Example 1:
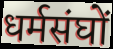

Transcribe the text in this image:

धर्मसंघों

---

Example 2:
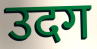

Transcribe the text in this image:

उदग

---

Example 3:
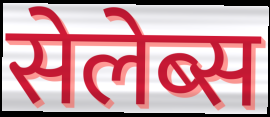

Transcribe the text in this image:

सेलेब्‍स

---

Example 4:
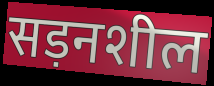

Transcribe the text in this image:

सड़नशील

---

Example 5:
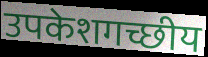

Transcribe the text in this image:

उपकेशगच्छीय